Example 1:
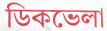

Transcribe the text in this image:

ডিকভেলা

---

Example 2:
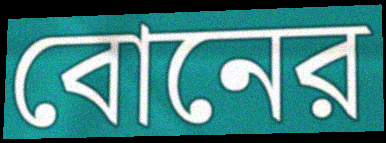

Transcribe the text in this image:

বোনের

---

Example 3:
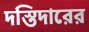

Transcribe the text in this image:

দস্তিদারের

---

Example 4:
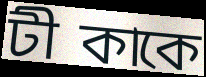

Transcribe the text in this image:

টীকাকে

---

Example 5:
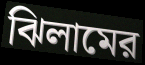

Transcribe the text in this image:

ঝিলামের